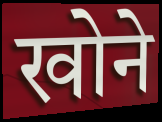
खोने